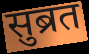
सुब्रत